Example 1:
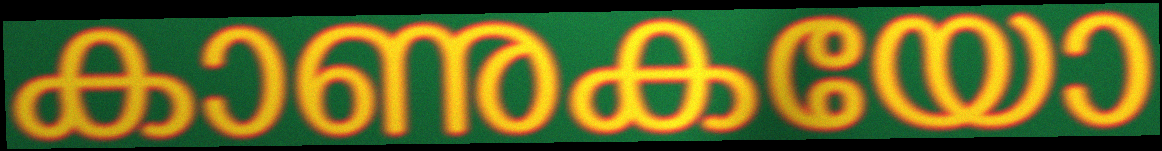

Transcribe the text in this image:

കാണുകയോ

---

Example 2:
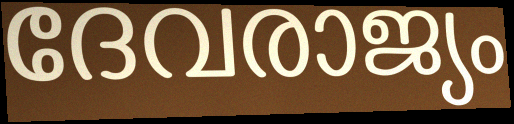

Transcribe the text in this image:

ദേവരാജ്യം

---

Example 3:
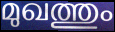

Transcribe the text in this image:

മുഖത്തും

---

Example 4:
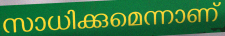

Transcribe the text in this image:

സാധിക്കുമെന്നാണ്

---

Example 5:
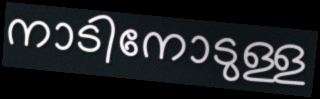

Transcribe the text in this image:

നാടിനോടുള്ള